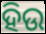
ହିଉ